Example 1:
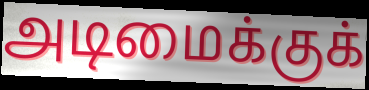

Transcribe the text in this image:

அடிமைக்குக்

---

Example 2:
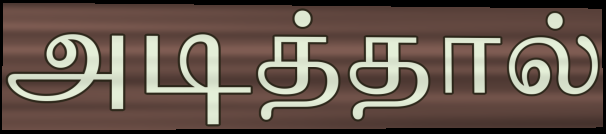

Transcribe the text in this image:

அடித்தால்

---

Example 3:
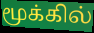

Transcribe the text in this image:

மூக்கில்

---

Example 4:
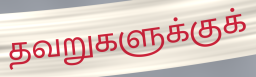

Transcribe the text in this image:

தவறுகளுக்குக்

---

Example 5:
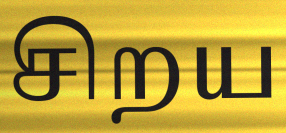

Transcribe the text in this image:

சிறய